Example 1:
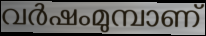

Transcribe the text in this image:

വർഷംമുമ്പാണ്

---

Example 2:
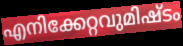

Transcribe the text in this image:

എനിക്കേറ്റവുമിഷ്ടം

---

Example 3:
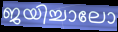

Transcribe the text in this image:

ജയിച്ചാലോ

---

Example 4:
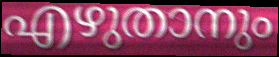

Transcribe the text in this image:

എഴുതാനും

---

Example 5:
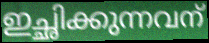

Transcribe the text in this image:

ഇച്ഛിക്കുന്നവന്